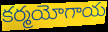
కర్మయోగాయ